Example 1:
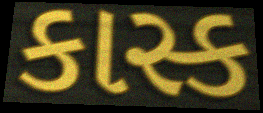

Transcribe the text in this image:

કાસ્ક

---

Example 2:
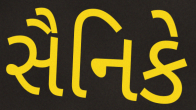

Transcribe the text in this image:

સૈનિકે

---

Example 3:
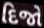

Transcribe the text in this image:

દિજો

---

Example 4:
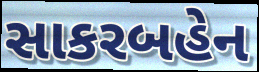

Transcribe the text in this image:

સાકરબહેન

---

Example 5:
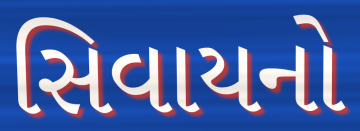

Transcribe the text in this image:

સિવાયનો